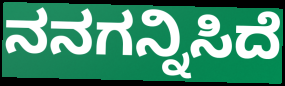
ನನಗನ್ನಿಸಿದೆ